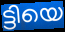
ട്ടിയെ